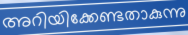
അറിയിക്കേണ്ടതാകുന്നു